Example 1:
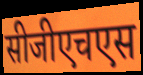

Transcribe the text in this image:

सीजीएचएस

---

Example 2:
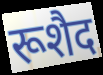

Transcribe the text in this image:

रूशैद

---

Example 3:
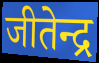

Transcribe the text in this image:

जीतेन्द्र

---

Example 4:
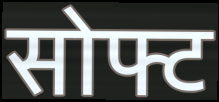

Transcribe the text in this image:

सोफ्ट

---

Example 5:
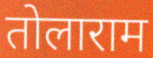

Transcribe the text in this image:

तोलाराम